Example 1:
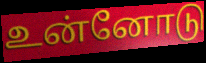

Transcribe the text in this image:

உன்னோடு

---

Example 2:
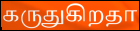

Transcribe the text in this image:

கருதுகிறதா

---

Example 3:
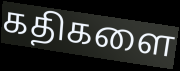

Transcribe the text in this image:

கதிகளை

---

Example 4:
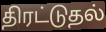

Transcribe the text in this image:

திரட்டுதல்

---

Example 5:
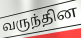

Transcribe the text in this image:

வருந்தின